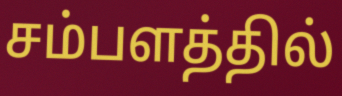
சம்பளத்தில்